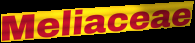
Meliaceae